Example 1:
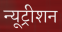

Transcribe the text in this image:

न्यूट्रीशन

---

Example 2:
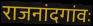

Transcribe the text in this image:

राजनांदगांवः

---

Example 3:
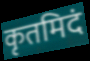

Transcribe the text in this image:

कृतमिदं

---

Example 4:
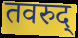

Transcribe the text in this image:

तवरुद्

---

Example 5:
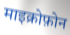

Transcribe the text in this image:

माइक्रोफ़ोन